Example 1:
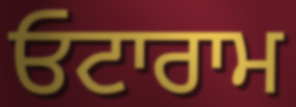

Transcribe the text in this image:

ਓਟਾਰਾਮ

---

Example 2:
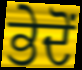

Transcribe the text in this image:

ਭੇਦੋਂ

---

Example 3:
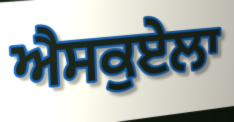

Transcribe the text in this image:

ਐਸਕੁਏਲਾ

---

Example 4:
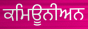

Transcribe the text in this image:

ਕਮਿਊਨੀਅਨ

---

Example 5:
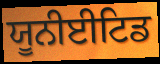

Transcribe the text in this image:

ਯੂਨੀਈਟਿਡ